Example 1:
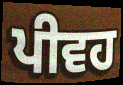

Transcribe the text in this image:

ਪੀਵਹ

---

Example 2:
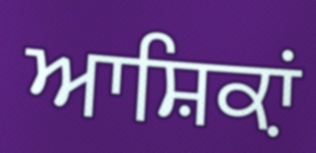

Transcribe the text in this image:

ਆਸ਼ਿਕ਼ਾਂ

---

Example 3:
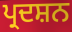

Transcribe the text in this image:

ਪ੍ਰਦਸ਼ਨ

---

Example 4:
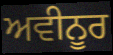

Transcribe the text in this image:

ਅਵੀਨੂਰ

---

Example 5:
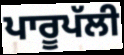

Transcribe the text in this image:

ਪਾਰੂਪੱਲੀ